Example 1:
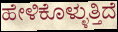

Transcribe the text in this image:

ಹೇಳಿಕೊಳ್ಳುತ್ತಿದೆ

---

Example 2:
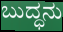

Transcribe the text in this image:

ಬುದ್ಧನು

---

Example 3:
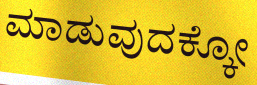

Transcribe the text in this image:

ಮಾಡುವುದಕ್ಕೋ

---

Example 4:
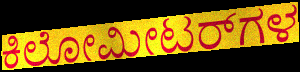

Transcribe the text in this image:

ಕಿಲೋಮೀಟರ್‌ಗಳ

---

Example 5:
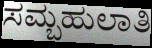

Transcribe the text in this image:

ಸಮ್ಬಹುಲಾತಿ